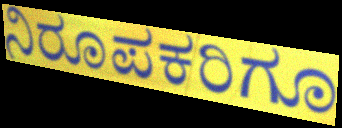
ನಿರೂಪಕರಿಗೂ